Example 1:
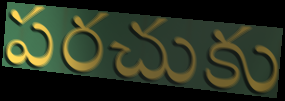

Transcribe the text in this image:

పరచుకు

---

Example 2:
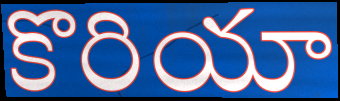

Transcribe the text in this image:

కొరియా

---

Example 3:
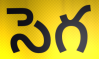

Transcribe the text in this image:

సెగ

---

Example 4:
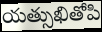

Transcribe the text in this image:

యత్సుఖితోపి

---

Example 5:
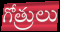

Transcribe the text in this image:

గోత్రులు